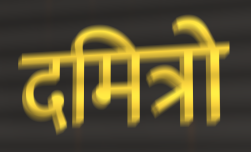
दमित्रो